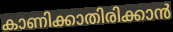
കാണിക്കാതിരിക്കാൻ